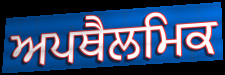
ਅਪਥੈਲਮਿਕ